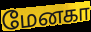
மேனகா